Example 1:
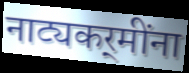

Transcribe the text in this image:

नाट्यकर्मींना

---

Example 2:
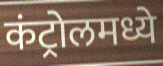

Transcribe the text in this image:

कंट्रोलमध्ये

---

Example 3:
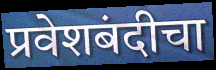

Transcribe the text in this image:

प्रवेशबंदीचा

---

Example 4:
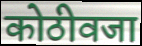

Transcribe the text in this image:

कोठीवजा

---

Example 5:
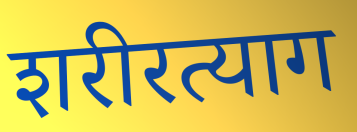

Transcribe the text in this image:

शरीरत्याग